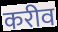
करीव